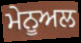
ਮੇਨੂਅਲ